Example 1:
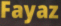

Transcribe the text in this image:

Fayaz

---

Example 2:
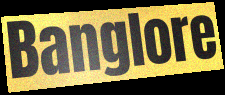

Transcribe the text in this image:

Banglore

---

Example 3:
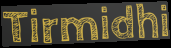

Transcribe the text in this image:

Tirmidhi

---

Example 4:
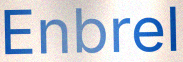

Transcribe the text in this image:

Enbrel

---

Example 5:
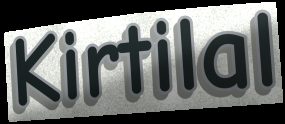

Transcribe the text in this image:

Kirtilal